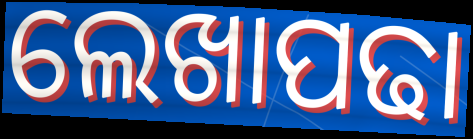
ଲେଖାପଢା